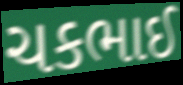
ચકભાઈ